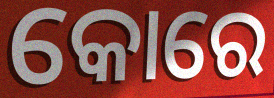
କୋରେ